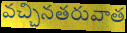
వచ్చినతరువాత